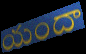
యందా